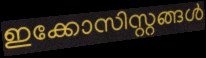
ഇക്കോസിസ്റ്റങ്ങൾ